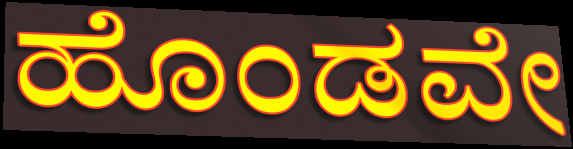
ಹೊಂಡವೇ